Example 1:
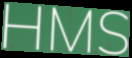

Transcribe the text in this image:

HMS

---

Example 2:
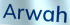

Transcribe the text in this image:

Arwah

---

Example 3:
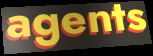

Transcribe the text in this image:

agents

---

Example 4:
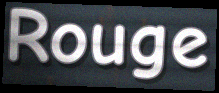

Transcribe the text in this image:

Rouge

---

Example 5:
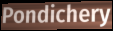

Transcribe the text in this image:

Pondichery